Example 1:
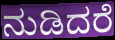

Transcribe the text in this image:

ನುಡಿದರೆ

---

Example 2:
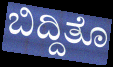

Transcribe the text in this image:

ಬಿದ್ದಿತೊ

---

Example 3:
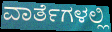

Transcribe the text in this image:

ವಾರ್ತೆಗಳಲ್ಲಿ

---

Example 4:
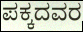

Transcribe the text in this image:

ಪಕ್ಕದವರ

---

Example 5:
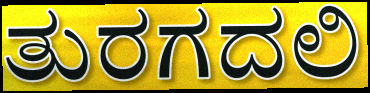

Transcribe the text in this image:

ತುರಗದಲಿ